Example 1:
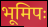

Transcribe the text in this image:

भूमिपः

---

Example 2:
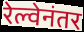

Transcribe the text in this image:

रेल्वेनंतर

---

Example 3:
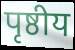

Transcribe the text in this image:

पृष्ठीय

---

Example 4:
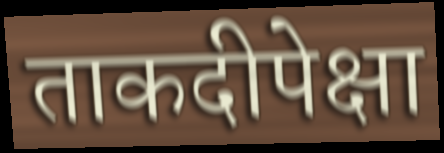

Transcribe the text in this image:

ताकदीपेक्षा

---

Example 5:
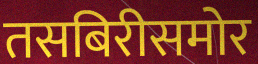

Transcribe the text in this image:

तसबिरीसमोर